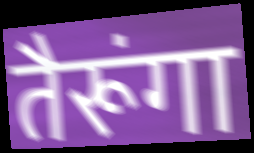
तैरूंगा